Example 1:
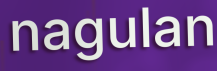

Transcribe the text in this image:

nagulan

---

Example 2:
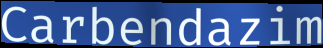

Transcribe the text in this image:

Carbendazim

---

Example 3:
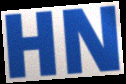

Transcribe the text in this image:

HN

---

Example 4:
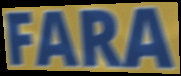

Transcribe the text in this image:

FARA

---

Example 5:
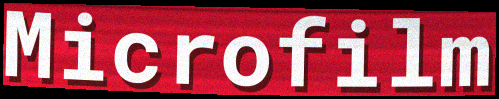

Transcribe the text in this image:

Microfilm